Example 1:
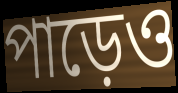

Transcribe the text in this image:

পাড়েও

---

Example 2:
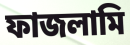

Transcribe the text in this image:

ফাজলামি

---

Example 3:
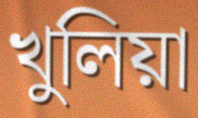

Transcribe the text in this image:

খুলিয়া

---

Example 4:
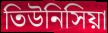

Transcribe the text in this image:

তিউনিসিয়া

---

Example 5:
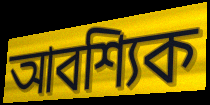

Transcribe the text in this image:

আবশ্যিক